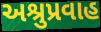
અશ્રુપ્રવાહ